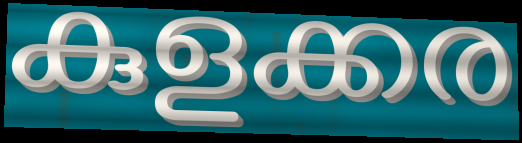
കുളക്കര